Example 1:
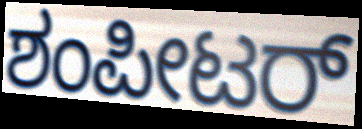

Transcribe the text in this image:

ಶಂಪೀಟರ್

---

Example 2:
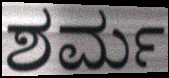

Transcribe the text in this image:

ಶರ್ಮ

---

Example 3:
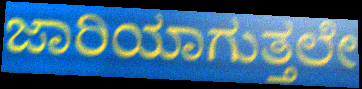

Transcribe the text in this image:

ಜಾರಿಯಾಗುತ್ತಲೇ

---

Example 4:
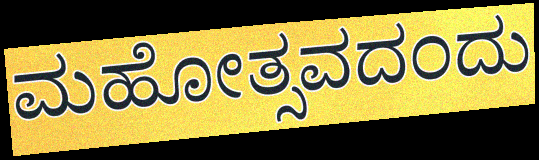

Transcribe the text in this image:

ಮಹೋತ್ಸವದಂದು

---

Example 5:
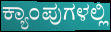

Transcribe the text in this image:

ಕ್ಯಾಂಪುಗಳಲ್ಲಿ